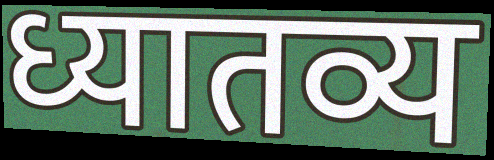
ध्यातव्य